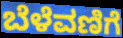
ಬೆಳೆವಣಿಗೆ